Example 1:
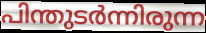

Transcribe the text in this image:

പിന്തുടർന്നിരുന്ന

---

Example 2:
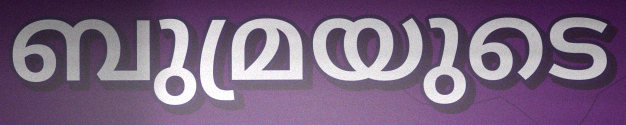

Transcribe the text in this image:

ബുമ്രയുടെ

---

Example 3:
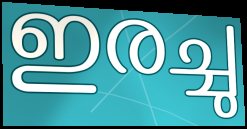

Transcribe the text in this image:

ഇരച്ചു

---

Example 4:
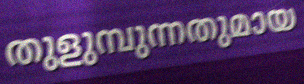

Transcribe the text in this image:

തുളുമ്പുന്നതുമായ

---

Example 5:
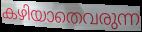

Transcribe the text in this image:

കഴിയാതെവരുന്ന